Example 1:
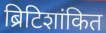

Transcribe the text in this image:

ब्रिटिशांकित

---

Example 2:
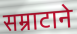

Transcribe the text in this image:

सम्राटाने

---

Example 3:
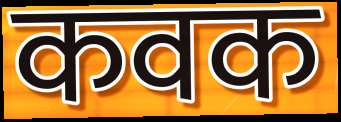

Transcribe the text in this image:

कवक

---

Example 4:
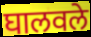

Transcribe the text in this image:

घालवले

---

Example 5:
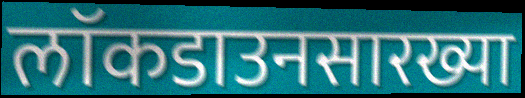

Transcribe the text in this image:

लॉकडाउनसारख्या